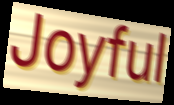
Joyful